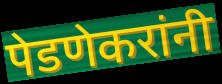
पेडणेकरांनी